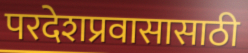
परदेशप्रवासासाठी